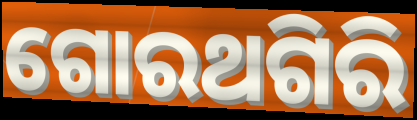
ଗୋରଥଗିରି